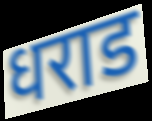
धराड